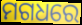
ମଗଧରେ